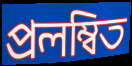
প্রলম্বিত